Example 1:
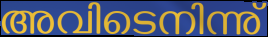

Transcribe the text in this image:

അവിടെനിന്നു്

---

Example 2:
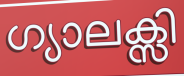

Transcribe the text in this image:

ഗ്യാലക്സി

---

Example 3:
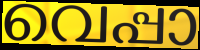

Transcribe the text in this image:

വെപ്പാ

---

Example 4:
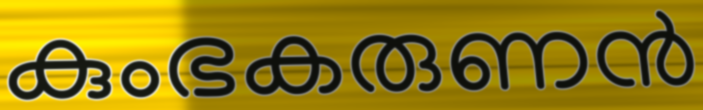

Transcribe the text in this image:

കുംഭകരുണൻ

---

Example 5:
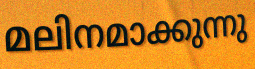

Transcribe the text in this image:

മലിനമാക്കുന്നു